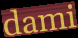
dami